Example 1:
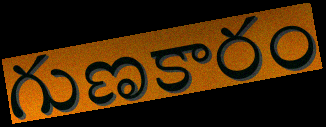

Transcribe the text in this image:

గుణకారం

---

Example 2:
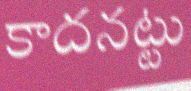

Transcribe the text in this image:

కాదనట్టు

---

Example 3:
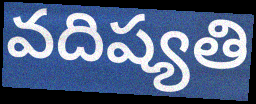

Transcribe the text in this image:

వదిష్యతి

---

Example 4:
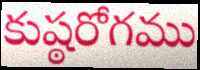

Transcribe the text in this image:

కుష్ఠరోగము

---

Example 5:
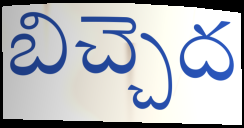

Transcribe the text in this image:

బిచ్చెద